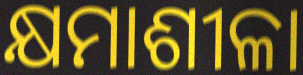
କ୍ଷମାଶୀଳା